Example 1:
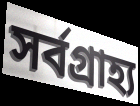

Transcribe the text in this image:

সর্বগ্রাহ্য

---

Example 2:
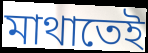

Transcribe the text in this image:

মাথাতেই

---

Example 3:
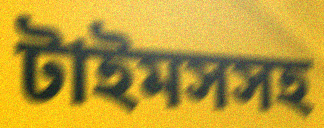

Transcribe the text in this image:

টাইমসসহ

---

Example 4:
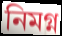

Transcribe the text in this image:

নিমগ্ন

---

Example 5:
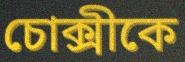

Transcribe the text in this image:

চোক্সীকে